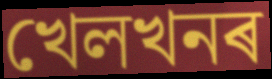
খেলখনৰ